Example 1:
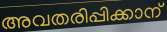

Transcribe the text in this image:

അവതരിപ്പിക്കാന്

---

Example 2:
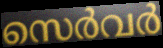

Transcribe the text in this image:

സെർവർ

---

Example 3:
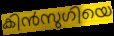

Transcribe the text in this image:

കിൻസുഗിയെ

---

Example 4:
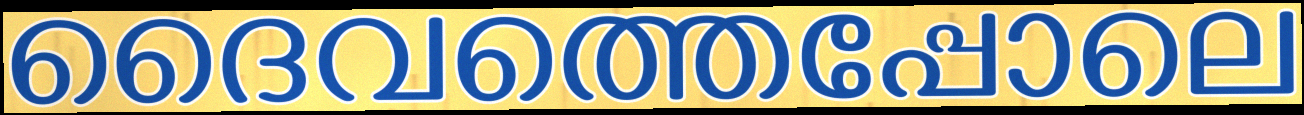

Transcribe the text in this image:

ദൈവത്തെപ്പോലെ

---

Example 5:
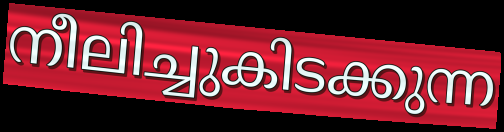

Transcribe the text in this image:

നീലിച്ചുകിടക്കുന്ന